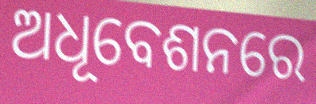
ଅଧୂବେଶନରେ